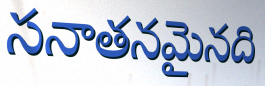
సనాతనమైనది